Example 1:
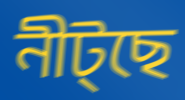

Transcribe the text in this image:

নীট্‌ছে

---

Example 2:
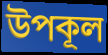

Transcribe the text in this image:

উপকূল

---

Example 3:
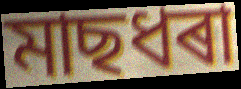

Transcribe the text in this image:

মাছধৰা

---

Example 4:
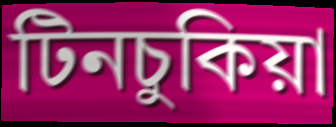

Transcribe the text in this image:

টিনচুকিয়া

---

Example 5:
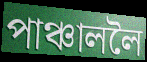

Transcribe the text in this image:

পাঞ্চাললৈ